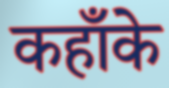
कहाँके